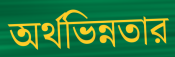
অর্থভিন্নতার